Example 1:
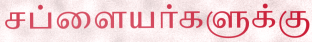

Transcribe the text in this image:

சப்ளையர்களுக்கு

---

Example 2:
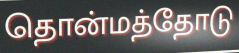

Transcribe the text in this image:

தொன்மத்தோடு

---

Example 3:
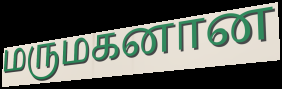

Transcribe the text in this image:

மருமகனான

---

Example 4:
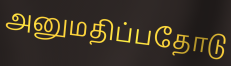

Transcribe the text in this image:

அனுமதிப்பதோடு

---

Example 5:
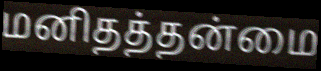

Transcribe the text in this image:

மனிதத்தன்மை